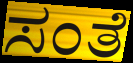
ಸಂತೆ